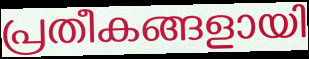
പ്രതീകങ്ങളായി